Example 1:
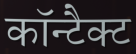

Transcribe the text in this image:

कॉन्टैक्ट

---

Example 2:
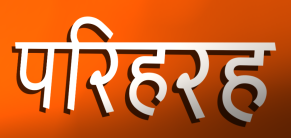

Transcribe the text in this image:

परिहरह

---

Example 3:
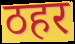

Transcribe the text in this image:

ठहर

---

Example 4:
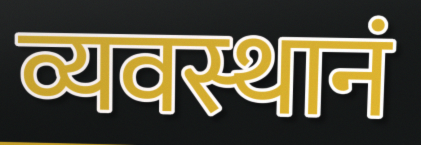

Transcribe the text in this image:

व्यवस्थानं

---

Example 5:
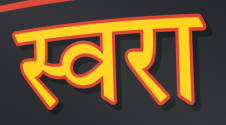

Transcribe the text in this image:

स्वरा